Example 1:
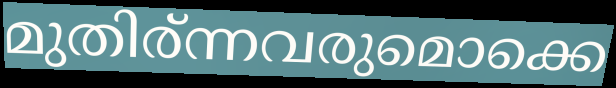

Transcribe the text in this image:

മുതിര്ന്നവരുമൊക്കെ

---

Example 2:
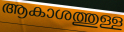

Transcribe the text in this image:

ആകാശത്തുള്ള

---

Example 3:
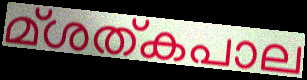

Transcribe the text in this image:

മ്ശത്കപാല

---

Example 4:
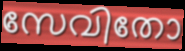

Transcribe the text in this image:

സേവിതോ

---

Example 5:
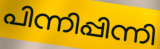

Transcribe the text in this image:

പിന്നിപ്പിന്നി